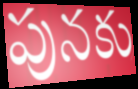
పునకు